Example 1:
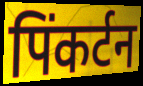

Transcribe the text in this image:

पिंकर्टन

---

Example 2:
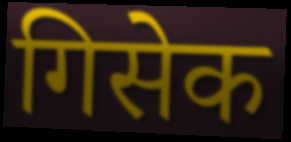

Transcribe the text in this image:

गिसेक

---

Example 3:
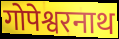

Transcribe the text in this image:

गोपेश्वरनाथ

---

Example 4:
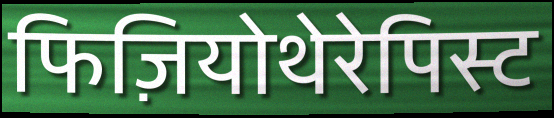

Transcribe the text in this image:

फिज़ियोथेरेपिस्ट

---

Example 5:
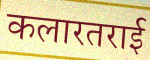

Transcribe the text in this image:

कलारतराई